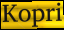
Kopri